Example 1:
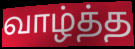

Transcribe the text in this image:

வாழ்த்த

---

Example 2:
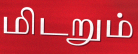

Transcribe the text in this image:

மிடறும்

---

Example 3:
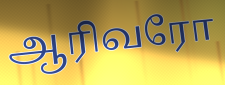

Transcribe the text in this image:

ஆரிவரோ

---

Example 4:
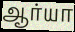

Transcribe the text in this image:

ஆர்யா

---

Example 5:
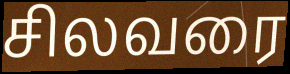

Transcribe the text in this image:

சிலவரை